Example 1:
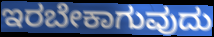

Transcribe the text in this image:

ಇರಬೇಕಾಗುವುದು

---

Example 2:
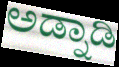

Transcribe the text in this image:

ಅಡ್ನಾಡಿ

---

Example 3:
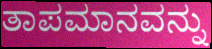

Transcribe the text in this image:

ತಾಪಮಾನವನ್ನು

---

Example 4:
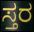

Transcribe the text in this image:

ಸ್ತರ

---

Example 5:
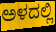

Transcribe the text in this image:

ಅಳದಲ್ಲಿ